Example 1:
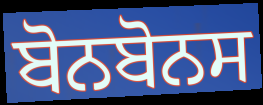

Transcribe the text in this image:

ਬੋਨਬੋਨਸ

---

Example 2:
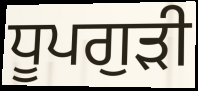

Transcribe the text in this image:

ਧੂਪਗੁੜੀ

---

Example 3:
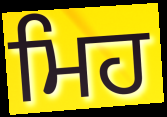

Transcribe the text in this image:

ਮਿਹ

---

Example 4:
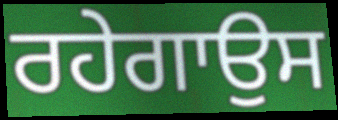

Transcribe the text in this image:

ਰਹੇਗਾਉਸ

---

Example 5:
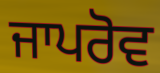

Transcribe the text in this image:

ਜਾਪਰੋਵ